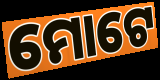
ମୋଟେ